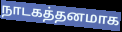
நாடகத்தனமாக